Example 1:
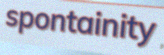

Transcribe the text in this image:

spontainity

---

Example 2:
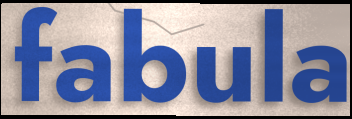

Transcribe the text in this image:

fabula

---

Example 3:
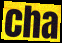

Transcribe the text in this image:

cha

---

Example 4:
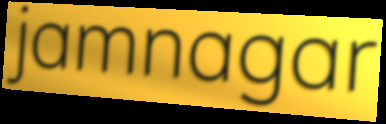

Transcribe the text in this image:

jamnagar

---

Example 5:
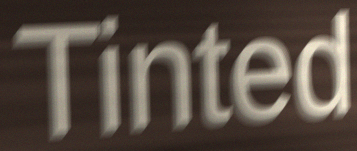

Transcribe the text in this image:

Tinted